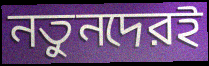
নতুনদেরই